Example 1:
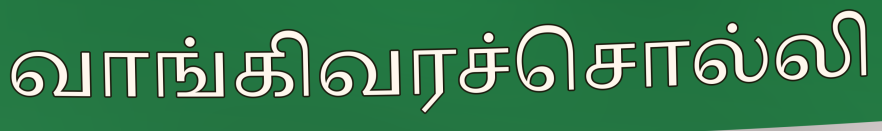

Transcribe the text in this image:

வாங்கிவரச்சொல்லி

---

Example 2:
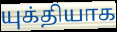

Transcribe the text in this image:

யுக்தியாக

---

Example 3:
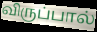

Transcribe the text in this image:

விருப்பால்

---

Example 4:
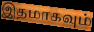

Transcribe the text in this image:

இதமாகவும்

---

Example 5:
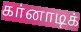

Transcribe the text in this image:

கர்னாடிக்